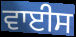
ਵਾਈਸ